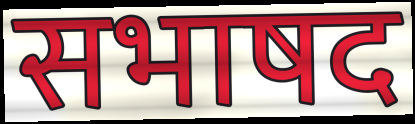
सभाषद